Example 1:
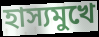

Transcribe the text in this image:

হাস্যমুখে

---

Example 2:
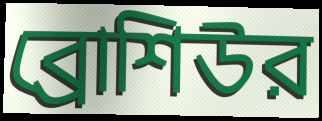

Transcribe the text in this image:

ব্রোশিউর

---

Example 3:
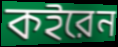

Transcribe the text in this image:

কইরেন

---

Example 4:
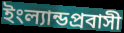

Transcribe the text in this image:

ইংল্যান্ডপ্রবাসী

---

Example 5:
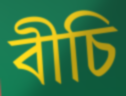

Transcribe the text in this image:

বীচি